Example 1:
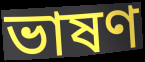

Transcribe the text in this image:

ভাষণ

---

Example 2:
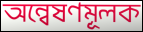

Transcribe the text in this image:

অন্বেষণমূলক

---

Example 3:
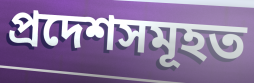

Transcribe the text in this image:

প্ৰদেশসমূহত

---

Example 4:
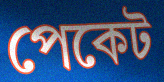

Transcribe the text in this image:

পেকেট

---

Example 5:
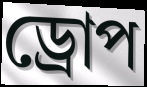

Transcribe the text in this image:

ড্ৰোপ